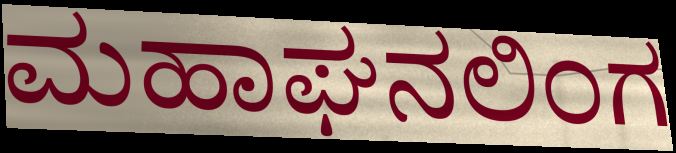
ಮಹಾಘನಲಿಂಗ